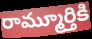
రామ్మూర్తికి